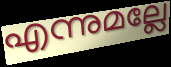
എന്നുമല്ലേ